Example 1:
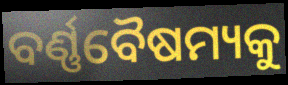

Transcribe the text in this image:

ବର୍ଣ୍ଣବୈଷମ୍ୟକୁ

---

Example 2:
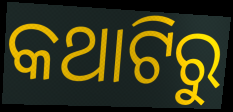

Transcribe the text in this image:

କଥାଟିରୁ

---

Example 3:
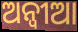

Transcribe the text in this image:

ଅନ୍ବୀଆ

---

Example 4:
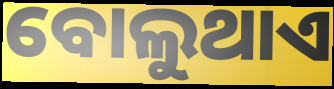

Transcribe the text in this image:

ବୋଲୁଥାଏ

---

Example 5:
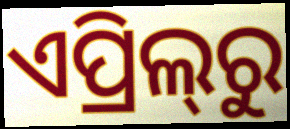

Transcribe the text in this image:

ଏପ୍ରିଲ୍‌ରୁ